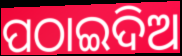
ପଠାଇଦିଅ